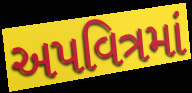
અપવિત્રમાં